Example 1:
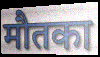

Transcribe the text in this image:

मौतका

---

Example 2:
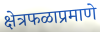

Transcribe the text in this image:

क्षेत्रफळाप्रमाणे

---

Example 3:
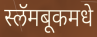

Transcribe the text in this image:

स्लॅमबूकमधे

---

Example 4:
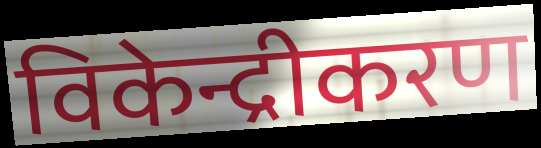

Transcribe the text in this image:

विकेन्द्रीकरण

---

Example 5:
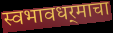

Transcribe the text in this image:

स्वभावधर्माचा